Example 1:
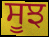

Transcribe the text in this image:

ਸੂਝ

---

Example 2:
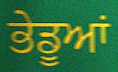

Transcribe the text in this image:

ਭੇਡੂਆਂ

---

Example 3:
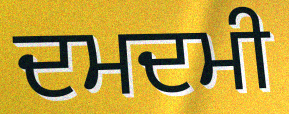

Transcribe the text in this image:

ਦਮਦਮੀ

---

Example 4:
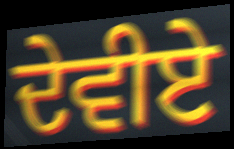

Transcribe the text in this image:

ਦੇਵੀਏ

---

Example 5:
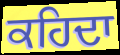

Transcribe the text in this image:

ਕਹਿਦਾ